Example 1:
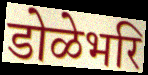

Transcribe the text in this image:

डोळेभरि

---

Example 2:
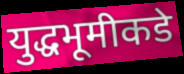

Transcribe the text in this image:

युद्धभूमीकडे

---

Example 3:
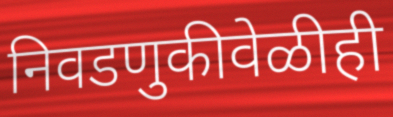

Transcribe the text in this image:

निवडणुकीवेळीही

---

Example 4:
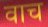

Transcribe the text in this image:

वाच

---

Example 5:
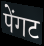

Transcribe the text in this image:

पेंगट